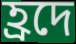
হ্রদে